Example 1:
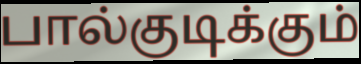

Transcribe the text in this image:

பால்குடிக்கும்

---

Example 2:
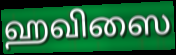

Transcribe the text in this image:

ஹவிஸை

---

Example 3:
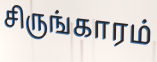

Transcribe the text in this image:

சிருங்காரம்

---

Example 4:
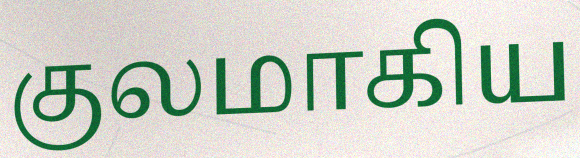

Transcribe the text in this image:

குலமாகிய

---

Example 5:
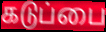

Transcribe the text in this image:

கடுப்பை